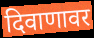
दिवाणावर